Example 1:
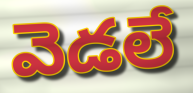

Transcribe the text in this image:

వెడలే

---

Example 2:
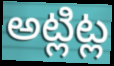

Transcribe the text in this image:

అట్లిట్ల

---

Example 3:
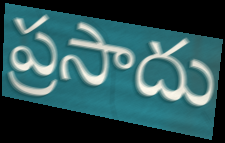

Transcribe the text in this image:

ప్రసాదు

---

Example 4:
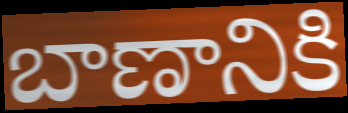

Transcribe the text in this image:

బాణానికి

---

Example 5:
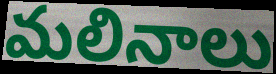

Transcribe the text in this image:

మలినాలు